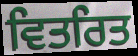
ਵਿਤਰਿਤ